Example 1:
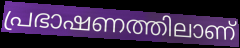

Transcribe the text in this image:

പ്രഭാഷണത്തിലാണ്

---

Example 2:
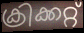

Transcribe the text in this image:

ക്രിക്കറ്റ്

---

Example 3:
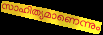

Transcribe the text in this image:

സാഹിത്യമാണെന്നും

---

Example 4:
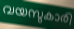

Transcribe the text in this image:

വയസുകാരി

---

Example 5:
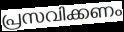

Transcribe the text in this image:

പ്രസവിക്കണം